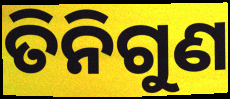
ତିନିଗୁଣ